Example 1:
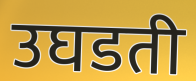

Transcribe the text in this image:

उघडती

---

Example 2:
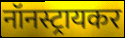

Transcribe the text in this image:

नॉनस्ट्रायकर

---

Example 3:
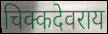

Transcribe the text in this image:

चिक्कदेवराय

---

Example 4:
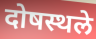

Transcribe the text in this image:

दोषस्थले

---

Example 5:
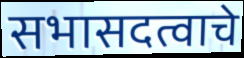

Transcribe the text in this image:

सभासदत्वाचे